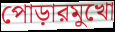
পোড়ারমুখো